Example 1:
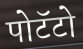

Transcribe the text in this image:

पोटॅटो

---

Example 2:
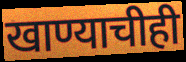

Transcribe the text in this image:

खाण्याचीही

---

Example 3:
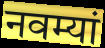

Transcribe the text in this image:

नवम्यां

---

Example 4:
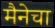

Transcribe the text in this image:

मैनेचा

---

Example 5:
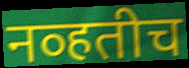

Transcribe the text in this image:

नव्हतीच